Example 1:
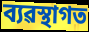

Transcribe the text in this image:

ব্যৱস্থাগত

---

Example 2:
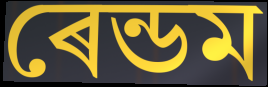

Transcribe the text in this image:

ৰেন্ডম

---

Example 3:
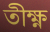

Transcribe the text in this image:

তীক্ষ্ণ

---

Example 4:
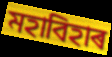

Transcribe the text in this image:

মহাবিহাৰ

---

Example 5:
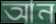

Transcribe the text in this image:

আন